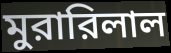
মুরারিলাল